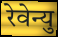
रेवेन्यु